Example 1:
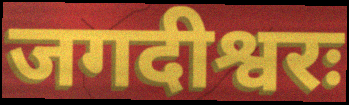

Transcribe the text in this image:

जगदीश्वरः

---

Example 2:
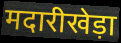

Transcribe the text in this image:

मदारीखेड़ा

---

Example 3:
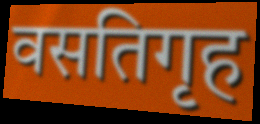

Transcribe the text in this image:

वसतिगृह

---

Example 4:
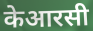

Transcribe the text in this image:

केआरसी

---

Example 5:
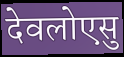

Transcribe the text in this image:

देवलोएसु